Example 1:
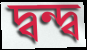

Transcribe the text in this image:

দ্বন্দ্ব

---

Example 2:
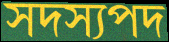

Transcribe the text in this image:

সদস্যপদ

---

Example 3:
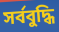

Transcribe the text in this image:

সৰ্ববুদ্ধি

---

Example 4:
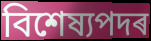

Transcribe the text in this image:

বিশেষ্যপদৰ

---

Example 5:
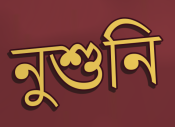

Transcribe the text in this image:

নুশুনি